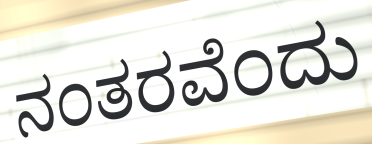
ನಂತರವೆಂದು